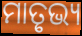
ମାତୃଭ୍ୟ